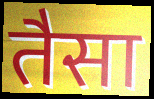
तैसा